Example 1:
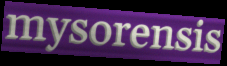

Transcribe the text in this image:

mysorensis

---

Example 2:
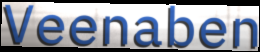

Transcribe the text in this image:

Veenaben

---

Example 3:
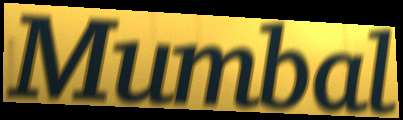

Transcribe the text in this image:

Mumbal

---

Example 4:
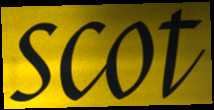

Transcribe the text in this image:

scot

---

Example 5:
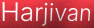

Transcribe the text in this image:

Harjivan